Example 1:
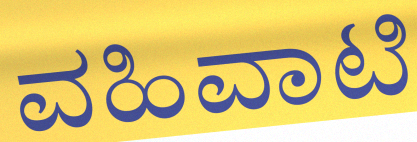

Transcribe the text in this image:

ವಹಿವಾಟಿ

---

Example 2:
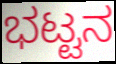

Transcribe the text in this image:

ಭಟ್ಟನ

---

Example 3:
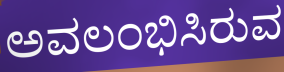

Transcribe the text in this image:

ಅವಲಂಭಿಸಿರುವ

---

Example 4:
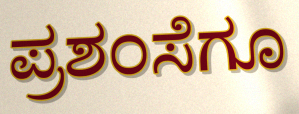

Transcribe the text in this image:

ಪ್ರಶಂಸೆಗೂ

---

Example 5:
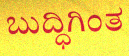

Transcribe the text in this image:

ಬುದ್ಧಿಗಿಂತ